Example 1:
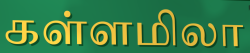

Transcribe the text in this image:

கள்ளமிலா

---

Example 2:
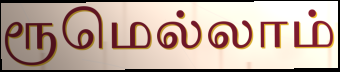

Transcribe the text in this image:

ரூமெல்லாம்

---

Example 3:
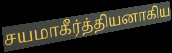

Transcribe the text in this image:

சயமாகீர்த்தியனாகிய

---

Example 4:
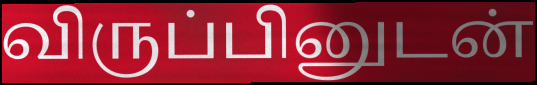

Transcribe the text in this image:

விருப்பினுடன்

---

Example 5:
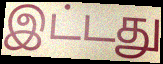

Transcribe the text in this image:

இட்டது